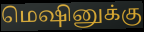
மெஷினுக்கு